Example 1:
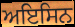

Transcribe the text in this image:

ਅਇਸਿਨ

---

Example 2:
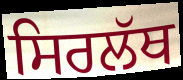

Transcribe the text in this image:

ਸਿਰਲੱਥ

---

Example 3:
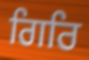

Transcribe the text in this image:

ਗਿਰਿ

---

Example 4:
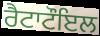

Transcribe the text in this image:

ਰੈਟਾਟੌਇਲ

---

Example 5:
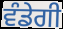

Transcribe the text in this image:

ਵੰਡੇਗੀ